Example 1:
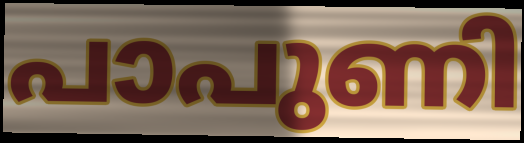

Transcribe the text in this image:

പാപുണി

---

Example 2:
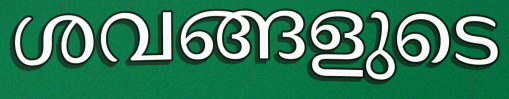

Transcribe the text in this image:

ശവങ്ങളുടെ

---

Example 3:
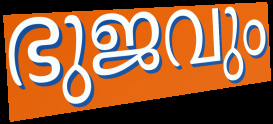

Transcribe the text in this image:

ഭുജവും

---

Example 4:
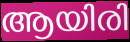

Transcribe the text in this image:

ആയിരി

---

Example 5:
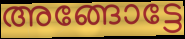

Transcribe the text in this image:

അങ്ങോട്ടേ